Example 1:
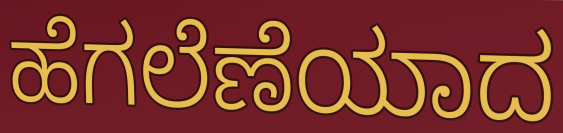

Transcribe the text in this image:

ಹೆಗಲೆಣೆಯಾದ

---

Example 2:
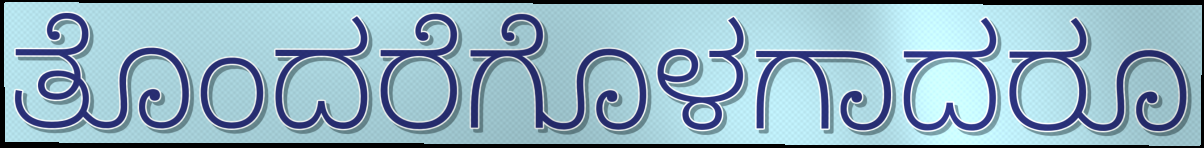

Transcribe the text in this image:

ತೊಂದರೆಗೊಳಗಾದರೂ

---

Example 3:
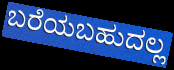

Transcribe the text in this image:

ಬರೆಯಬಹುದಲ್ಲ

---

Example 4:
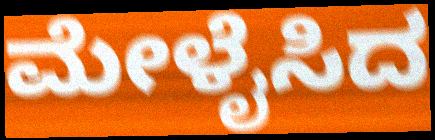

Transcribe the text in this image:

ಮೇಳೈಸಿದ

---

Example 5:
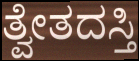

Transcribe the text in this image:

ತ್ವೇತದಸ್ತಿ